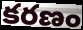
కరణం